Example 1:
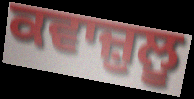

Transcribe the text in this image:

ਕਵਾਜ਼ੁਲੂ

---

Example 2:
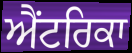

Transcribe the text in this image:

ਐਂਟਰਿਕਾ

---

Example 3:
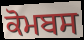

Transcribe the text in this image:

ਕੋਮਬਸ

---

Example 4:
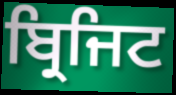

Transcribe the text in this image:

ਬ੍ਰਿਜਿਟ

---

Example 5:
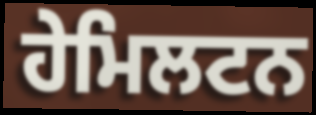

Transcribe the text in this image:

ਹੇਮਿਲਟਨ